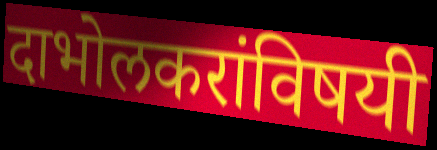
दाभोलकरांविषयी